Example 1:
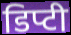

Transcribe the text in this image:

डिप्टी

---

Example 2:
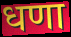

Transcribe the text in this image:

धणा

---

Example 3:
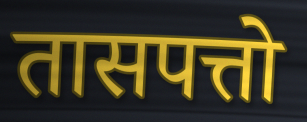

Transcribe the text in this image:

तासपत्तो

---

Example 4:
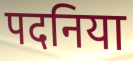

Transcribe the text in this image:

पदनिया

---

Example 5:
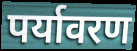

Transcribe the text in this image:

पर्यावरण